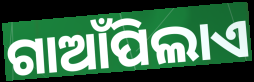
ଗାଆଁପିଲାଏ